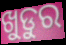
ଖୁଡୁର